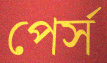
পের্স